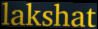
lakshat